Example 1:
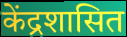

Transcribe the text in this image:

केंद्रशासित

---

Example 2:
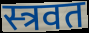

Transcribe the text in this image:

स्त्रवत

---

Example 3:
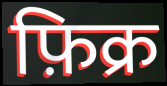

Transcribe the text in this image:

फ़िक्र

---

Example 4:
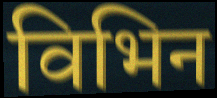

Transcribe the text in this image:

विभिन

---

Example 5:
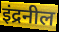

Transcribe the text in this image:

इंद्रनील